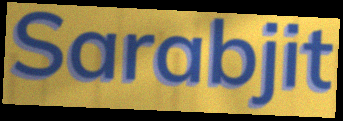
Sarabjit